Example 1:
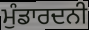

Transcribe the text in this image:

ਮੁੰਡਾਰਦਨੀ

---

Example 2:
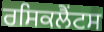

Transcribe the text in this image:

ਰਸਿਕਲੈਂਟਸ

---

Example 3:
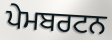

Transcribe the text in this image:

ਪੇਮਬਰਟਨ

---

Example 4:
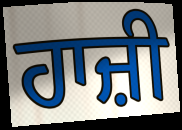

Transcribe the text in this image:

ਹਾਜ਼ੀ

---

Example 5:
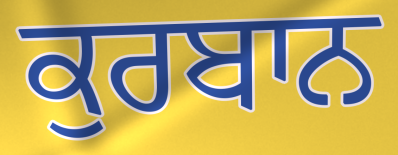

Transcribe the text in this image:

ਕੁਰਬਾਨ